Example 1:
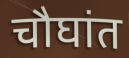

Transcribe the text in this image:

चौघांत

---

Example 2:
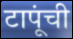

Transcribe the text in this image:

टापूंची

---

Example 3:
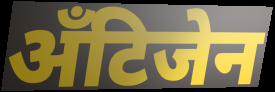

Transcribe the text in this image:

अँटिजेन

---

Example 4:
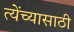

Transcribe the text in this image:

त्येंच्यासाठी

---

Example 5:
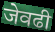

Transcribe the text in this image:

जेवढी